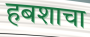
हबशाचा